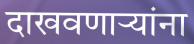
दाखवणाऱ्यांना